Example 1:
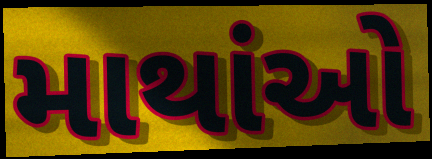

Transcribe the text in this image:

માથાંઓ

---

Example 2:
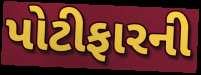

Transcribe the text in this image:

પોટીફારની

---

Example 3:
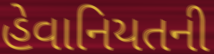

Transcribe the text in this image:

હેવાનિયતની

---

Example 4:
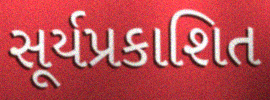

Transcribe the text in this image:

સૂર્યપ્રકાશિત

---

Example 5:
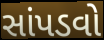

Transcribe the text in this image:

સાંપડવો